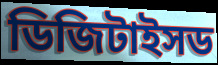
ডিজিটাইসড